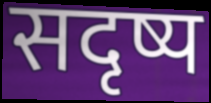
सदृष्य